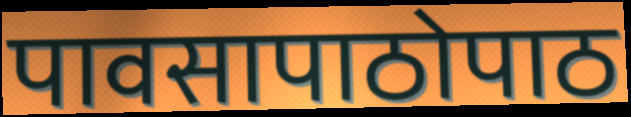
पावसापाठोपाठ